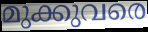
മുക്കുവരെ